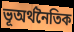
ভূঅর্থনৈতিক